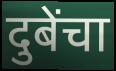
दुबेंचा